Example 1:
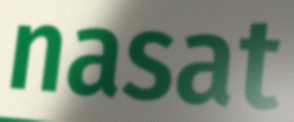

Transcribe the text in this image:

nasat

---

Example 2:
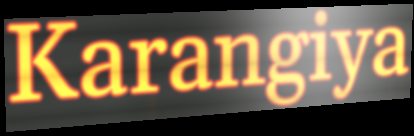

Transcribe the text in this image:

Karangiya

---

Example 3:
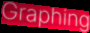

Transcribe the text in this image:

Graphing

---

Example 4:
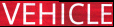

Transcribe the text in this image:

VEHICLE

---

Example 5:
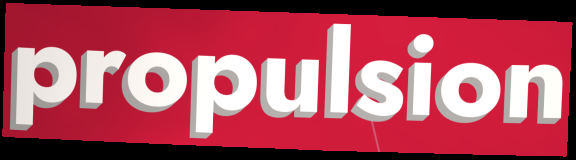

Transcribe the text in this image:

propulsion